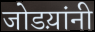
जोडय़ांनी